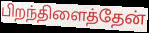
பிறந்திளைத்தேன்